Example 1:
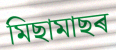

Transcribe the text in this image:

মিছামাছৰ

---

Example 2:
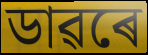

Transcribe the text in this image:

ডাৱৰে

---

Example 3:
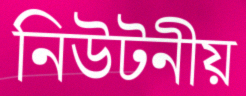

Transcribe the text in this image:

নিউটনীয়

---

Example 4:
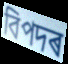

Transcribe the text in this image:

বিপদৰ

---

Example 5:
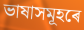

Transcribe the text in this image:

ভাষাসমূহৰে